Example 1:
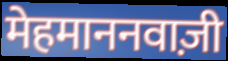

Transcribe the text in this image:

मेहमाननवाज़ी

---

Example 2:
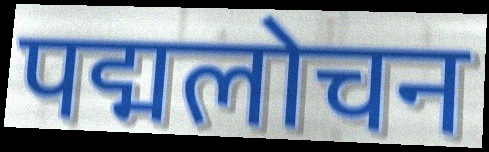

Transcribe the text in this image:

पद्मलोचन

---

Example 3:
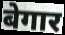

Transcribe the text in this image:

बेगार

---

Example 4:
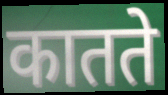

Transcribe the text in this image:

कातते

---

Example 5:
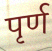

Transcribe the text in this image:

पृर्ण